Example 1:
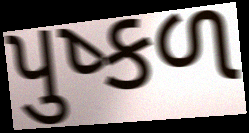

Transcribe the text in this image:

પુષ્કળ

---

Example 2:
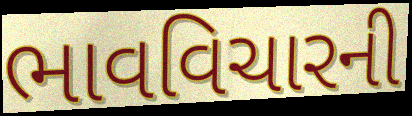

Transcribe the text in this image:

ભાવવિચારની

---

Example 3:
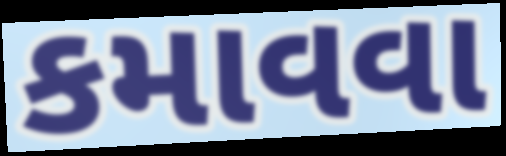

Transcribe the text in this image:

કમાવવા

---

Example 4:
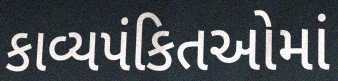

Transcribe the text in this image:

કાવ્યપંકિતઓમાં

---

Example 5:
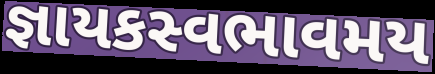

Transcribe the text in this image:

જ્ઞાયકસ્વભાવમય